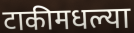
टाकीमधल्या